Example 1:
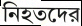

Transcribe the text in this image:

নিহতদের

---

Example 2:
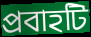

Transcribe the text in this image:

প্রবাহটি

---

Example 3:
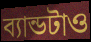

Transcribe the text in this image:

ব্যান্ডটাও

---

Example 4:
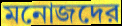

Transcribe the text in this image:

মনোজদের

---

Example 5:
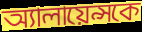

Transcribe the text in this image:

অ্যালায়েন্সকে